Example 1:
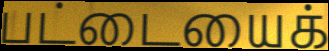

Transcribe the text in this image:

பட்டையைக்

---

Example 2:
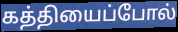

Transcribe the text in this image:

கத்தியைப்போல்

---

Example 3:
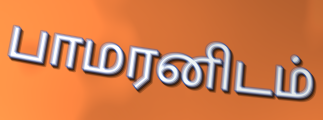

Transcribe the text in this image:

பாமரனிடம்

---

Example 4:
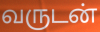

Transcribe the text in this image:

வருடன்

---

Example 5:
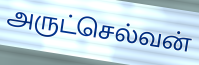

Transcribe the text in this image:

அருட்செல்வன்